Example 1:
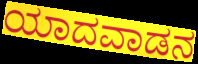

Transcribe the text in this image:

ಯಾದವಾಡನ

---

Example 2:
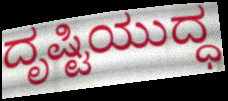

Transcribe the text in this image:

ದೃಷ್ಟಿಯುದ್ಧ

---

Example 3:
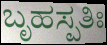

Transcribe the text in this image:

ಬೃಹಸ್ಪತಿಃ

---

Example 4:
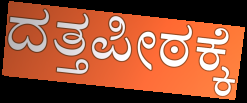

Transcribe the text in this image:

ದತ್ತಪೀಠಕ್ಕೆ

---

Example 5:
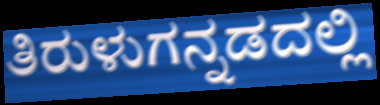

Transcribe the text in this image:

ತಿರುಳುಗನ್ನಡದಲ್ಲಿ